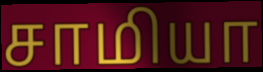
சாமியா